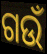
ଗଉଁ